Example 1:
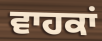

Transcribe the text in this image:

ਵਾਹਕਾਂ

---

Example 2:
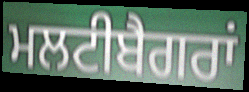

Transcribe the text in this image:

ਮਲਟੀਬੈਗਰਾਂ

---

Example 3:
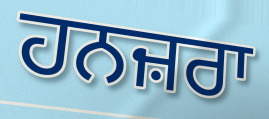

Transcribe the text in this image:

ਹਨਜ਼ਰਾ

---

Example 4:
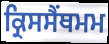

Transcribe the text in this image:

ਕ੍ਰਿਸਸੈਂਥਮਮ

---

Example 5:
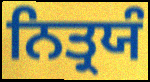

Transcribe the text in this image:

ਨਿਤ੍ਰਯੰ